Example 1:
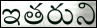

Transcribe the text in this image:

ఇతరుని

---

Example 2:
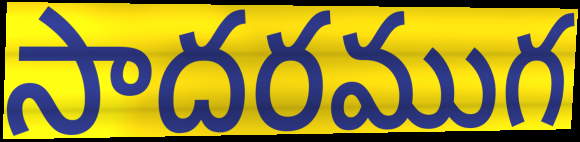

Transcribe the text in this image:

సాదరముగ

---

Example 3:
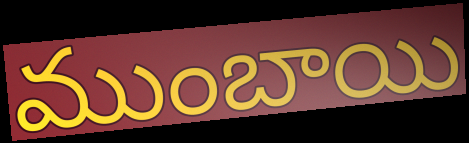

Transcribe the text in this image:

ముంబాయి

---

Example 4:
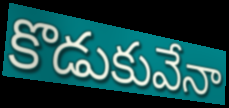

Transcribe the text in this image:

కొడుకువేనా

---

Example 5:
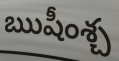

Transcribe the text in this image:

ఋషీంశ్చ